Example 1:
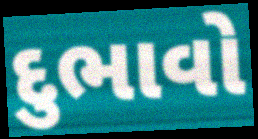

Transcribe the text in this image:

દુભાવો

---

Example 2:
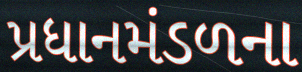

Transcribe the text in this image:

પ્રધાનમંડળના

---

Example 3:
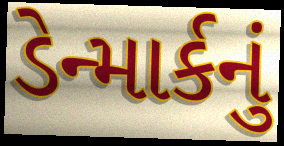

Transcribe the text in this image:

ડેન્માર્કનું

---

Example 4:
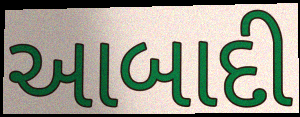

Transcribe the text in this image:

આબાદી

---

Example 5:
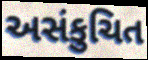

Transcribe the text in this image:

અસંકુચિત